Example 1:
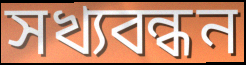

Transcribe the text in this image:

সখ্যবন্ধন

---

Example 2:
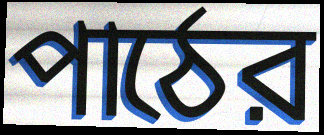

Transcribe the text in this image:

পাঠের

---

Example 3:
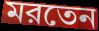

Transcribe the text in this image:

মরতেন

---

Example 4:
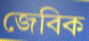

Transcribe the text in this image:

জেবিক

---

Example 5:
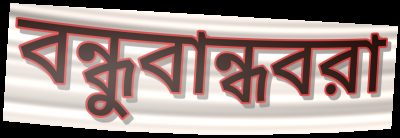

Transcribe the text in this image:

বন্ধুবান্ধবরা